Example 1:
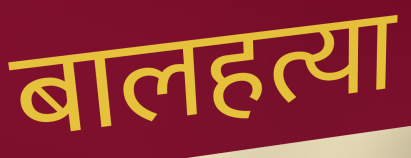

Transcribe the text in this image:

बालहत्या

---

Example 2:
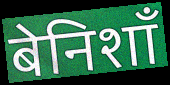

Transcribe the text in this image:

बेनिशाँ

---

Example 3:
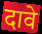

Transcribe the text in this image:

दावे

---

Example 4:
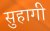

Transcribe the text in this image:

सुहागी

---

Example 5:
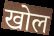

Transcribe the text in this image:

खोल